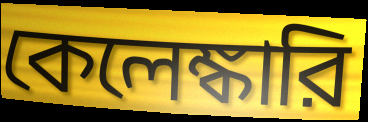
কেলেঙ্কারি